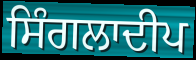
ਸਿੰਗਲਾਦੀਪ